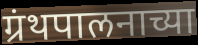
ग्रंथपालनाच्या